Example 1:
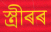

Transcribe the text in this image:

স্ত্ৰীৰৰ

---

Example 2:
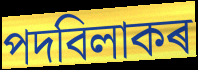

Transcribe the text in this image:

পদবিলাকৰ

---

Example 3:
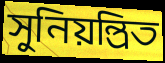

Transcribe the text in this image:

সুনিয়ন্ত্ৰিত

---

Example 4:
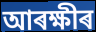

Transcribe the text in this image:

আৰক্ষীৰ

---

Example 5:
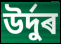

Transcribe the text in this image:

উৰ্দুৰ